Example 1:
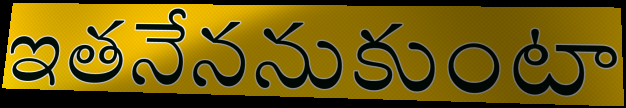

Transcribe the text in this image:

ఇతనేననుకుంటా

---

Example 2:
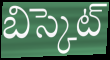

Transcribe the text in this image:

బిస్కెట్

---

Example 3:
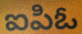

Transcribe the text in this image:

ఐపిఓ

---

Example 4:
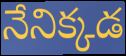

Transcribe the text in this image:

నేనిక్కడ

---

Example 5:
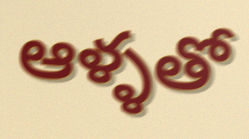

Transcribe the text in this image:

ఆళ్ళతో